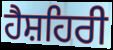
ਹੈਸ਼ਹਿਰੀ